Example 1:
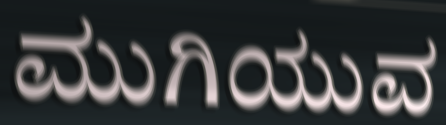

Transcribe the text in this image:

ಮುಗಿಯುವ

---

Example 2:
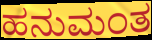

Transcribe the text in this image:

ಹನುಮಂತ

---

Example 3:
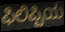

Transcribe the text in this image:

ಫಿಲಿಪ್ಪಿಯ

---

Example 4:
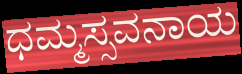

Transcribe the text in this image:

ಧಮ್ಮಸ್ಸವನಾಯ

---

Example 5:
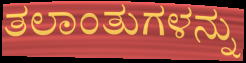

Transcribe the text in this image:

ತಲಾಂತುಗಳನ್ನು